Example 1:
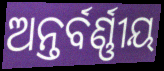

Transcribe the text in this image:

ଅନ୍ତର୍ବର୍ଣ୍ଣୀୟ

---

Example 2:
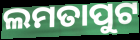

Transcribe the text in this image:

ଲମତାପୁଟ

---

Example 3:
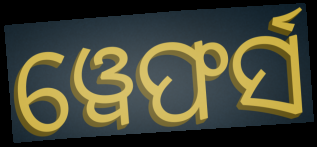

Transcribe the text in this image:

ୱେଫର୍ସ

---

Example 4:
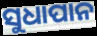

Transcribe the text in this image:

ସୁଧାପାନ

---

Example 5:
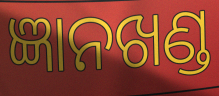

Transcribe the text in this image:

ଜ୍ଞାନଖଣ୍ଡ